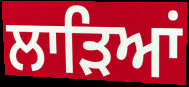
ਲਾੜਿਆਂ